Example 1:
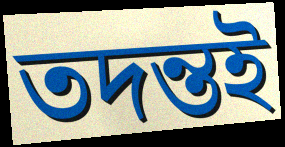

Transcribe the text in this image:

তদন্তই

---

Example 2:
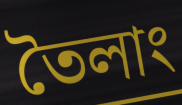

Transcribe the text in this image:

তৈলাং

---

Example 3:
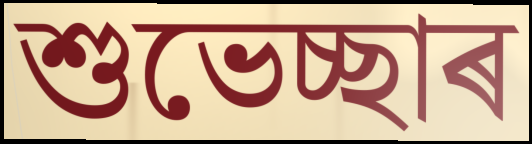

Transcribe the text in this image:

শুভেচ্ছাৰ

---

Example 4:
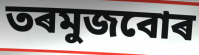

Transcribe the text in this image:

তৰমুজবোৰ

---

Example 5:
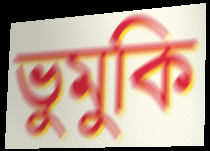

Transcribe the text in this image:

ভুমুকি